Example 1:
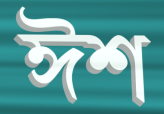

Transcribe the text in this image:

ঈশ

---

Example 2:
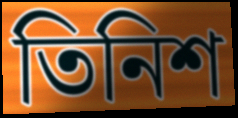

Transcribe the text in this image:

তিনিশ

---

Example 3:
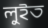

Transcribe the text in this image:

লুইত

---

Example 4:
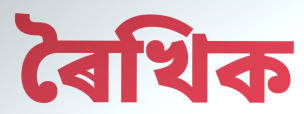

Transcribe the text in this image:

ৰৈখিক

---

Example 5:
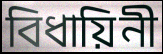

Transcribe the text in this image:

বিধায়িনী